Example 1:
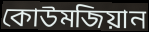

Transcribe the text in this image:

কোউমজিয়ান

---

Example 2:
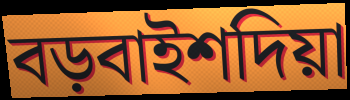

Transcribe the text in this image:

বড়বাইশদিয়া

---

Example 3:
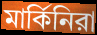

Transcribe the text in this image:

মার্কিনিরা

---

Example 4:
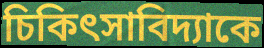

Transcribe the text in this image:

চিকিৎসাবিদ্যাকে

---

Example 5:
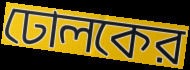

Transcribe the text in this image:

ঢোলকের